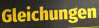
Gleichungen